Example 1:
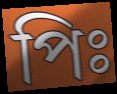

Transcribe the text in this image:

পিঃ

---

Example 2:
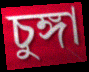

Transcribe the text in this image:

চুঙ্গা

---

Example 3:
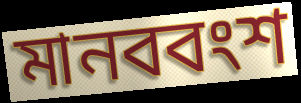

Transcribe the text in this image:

মানববংশ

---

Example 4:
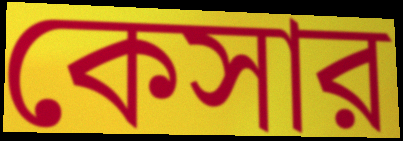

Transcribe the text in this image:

কেসার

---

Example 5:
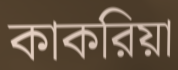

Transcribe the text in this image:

কাকরিয়া